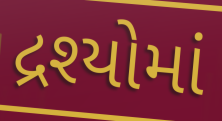
દ્રશ્યોમાં